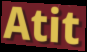
Atit